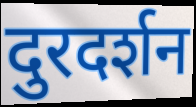
दुरदर्शन